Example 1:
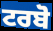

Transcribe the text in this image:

ਟਰਬੋ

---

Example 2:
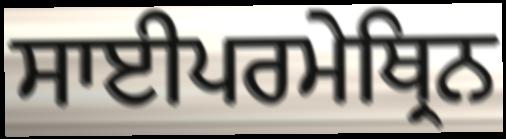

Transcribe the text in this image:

ਸਾਈਪਰਮੇਥ੍ਰਿਨ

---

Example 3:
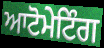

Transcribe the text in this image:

ਆਟੋਮੇਟਿੰਗ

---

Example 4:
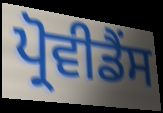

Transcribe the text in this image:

ਪ੍ਰੋਵੀਡੈਂਸ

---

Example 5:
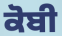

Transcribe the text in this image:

ਕੋਬੀ